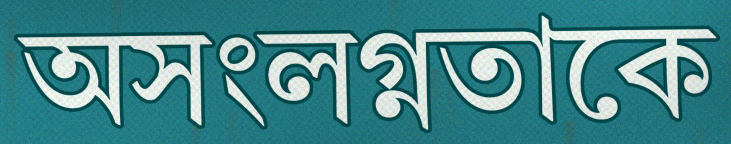
অসংলগ্নতাকে